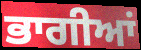
ਭਾਗੀਆਂ